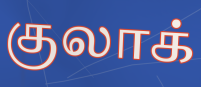
குலாக்